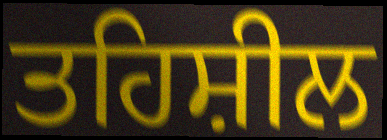
ਤਹਿਸ਼ੀਲ